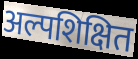
अल्पशिक्षित